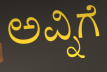
ಅವ್ನಿಗೆ